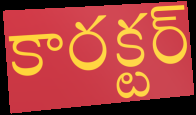
కారక్టర్